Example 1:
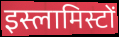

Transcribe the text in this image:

इस्लामिस्टों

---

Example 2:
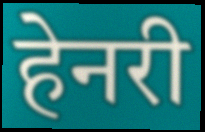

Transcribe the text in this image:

हेनरी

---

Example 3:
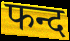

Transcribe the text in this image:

फन्द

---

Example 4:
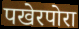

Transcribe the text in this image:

पखेरपोरा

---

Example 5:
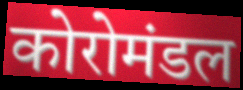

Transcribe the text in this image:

कोरोमंडल